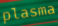
plasma